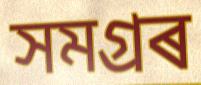
সমগ্ৰৰ